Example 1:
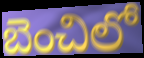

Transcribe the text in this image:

బెంచిలో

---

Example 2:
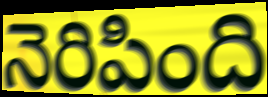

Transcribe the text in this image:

నెరిపింది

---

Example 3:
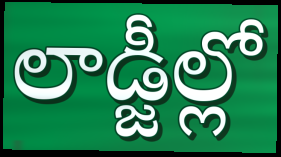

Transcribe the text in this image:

లాడ్జీల్లో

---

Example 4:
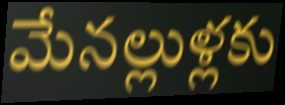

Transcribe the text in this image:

మేనల్లుళ్లకు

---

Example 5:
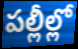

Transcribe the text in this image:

పల్లీల్లో